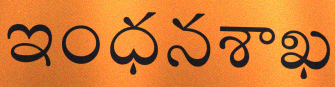
ఇంధనశాఖ